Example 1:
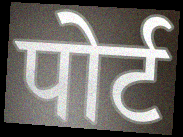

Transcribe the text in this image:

पोर्ट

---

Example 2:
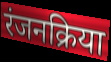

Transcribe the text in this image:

रंजनक्रिया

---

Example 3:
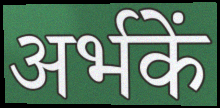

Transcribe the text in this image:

अर्भकें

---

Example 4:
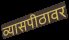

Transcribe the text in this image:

व्यासपीठावर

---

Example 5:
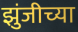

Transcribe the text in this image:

झुंजीच्या